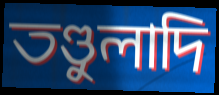
তণ্ডুলাদি